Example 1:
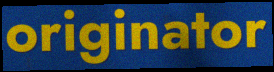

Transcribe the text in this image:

originator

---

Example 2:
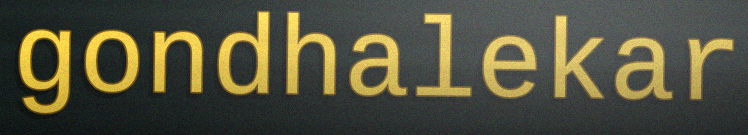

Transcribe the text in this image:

gondhalekar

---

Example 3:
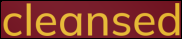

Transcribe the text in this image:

cleansed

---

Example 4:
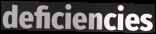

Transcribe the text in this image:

deficiencies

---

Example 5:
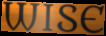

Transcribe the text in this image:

WISE